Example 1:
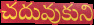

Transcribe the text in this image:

చదువుకుని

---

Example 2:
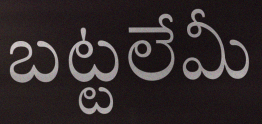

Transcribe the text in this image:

బట్టలేమీ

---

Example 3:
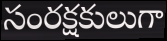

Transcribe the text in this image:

సంరక్షకులుగా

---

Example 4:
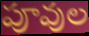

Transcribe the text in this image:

పూవుల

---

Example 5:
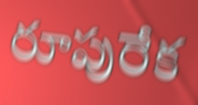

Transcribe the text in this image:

రూపురేక